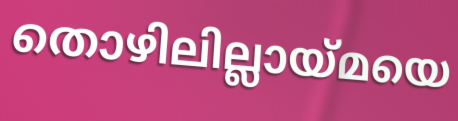
തൊഴിലില്ലായ്മയെ